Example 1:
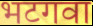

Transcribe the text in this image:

भटगवा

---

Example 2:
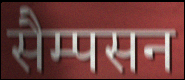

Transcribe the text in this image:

सैम्पसन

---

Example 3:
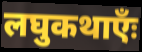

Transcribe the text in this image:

लघुकथाएँः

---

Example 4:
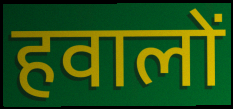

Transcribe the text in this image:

हवालों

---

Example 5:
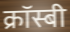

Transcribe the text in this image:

क्रॉस्बी